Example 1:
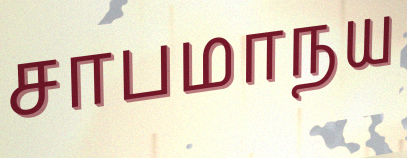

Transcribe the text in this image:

சாபமாநய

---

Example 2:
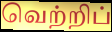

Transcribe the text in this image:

வெற்றிப்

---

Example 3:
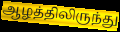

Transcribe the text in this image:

ஆழத்திலிருந்து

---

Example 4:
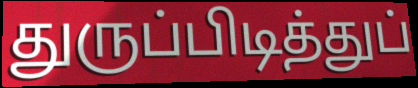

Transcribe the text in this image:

துருப்பிடித்துப்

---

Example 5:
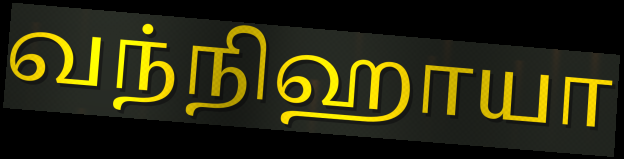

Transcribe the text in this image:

வந்நிஹாயா